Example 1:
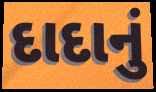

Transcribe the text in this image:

દાદાનું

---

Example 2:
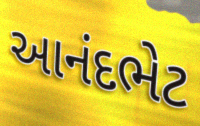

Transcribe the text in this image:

આનંદભેટ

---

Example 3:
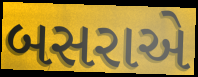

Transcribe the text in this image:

બસરાએ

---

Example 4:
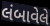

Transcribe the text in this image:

લંબાવેલે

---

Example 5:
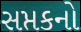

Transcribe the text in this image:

સપ્તકનો